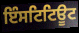
ਇੰਸਟਿਟਿਊਟ